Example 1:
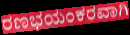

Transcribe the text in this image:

ರಣಭಯಂಕರವಾಗಿ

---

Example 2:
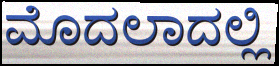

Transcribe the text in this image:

ಮೊದಲಾದಲ್ಲಿ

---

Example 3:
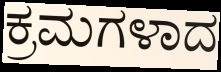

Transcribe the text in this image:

ಕ್ರಮಗಳಾದ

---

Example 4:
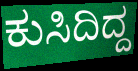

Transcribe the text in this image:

ಕುಸಿದಿದ್ದ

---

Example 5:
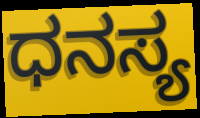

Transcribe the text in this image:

ಧನಸ್ಯ